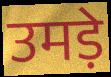
उमड़े